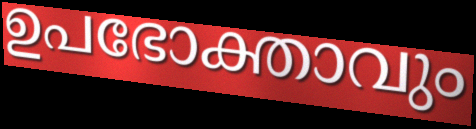
ഉപഭോക്താവും